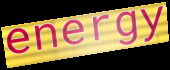
energy